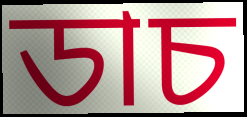
ডাচ